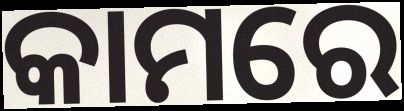
କାମରେ